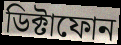
ডিক্টাফোন